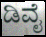
ಡಿವೈ